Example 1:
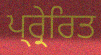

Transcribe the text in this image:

ਪ੍ਰ੍ਰੇਰਿਤ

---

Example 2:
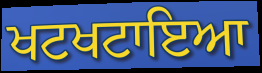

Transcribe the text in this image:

ਖਟਖਟਾਇਆ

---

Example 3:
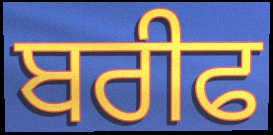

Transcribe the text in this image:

ਬਰੀਫ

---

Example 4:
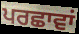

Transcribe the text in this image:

ਪਰਛਾਵਾਂ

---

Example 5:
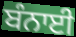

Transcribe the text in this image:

ਬੰਨਾਈ